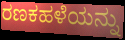
ರಣಕಹಳೆಯನ್ನು